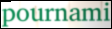
pournami